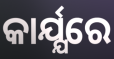
କାର୍ଯ୍ଯରେ